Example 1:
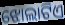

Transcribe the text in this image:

ଝୋଲାଟିଏ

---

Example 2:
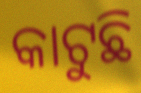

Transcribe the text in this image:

କାଟୁଛି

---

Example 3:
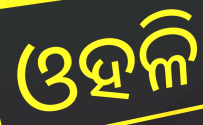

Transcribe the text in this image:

ଓହଳି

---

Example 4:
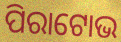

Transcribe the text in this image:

ପିରାଟୋଭ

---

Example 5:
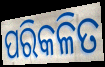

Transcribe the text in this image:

ପରିକଳିତ